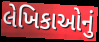
લેખિકાઓનું